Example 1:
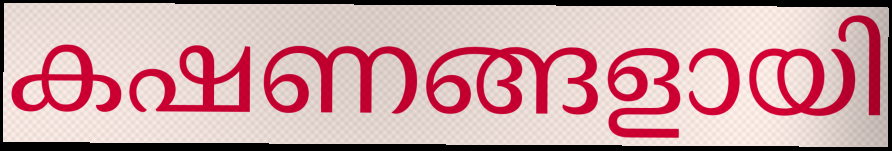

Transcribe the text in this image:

കഷണങ്ങളായി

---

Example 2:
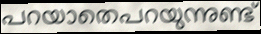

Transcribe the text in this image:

പറയാതെപറയുന്നുണ്ട്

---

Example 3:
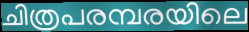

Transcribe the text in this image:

ചിത്രപരമ്പരയിലെ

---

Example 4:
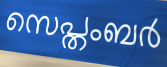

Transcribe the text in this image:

സെപ്തംബർ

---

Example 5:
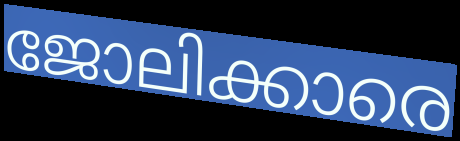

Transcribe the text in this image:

ജോലിക്കാരെ